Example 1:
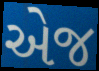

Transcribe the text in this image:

એજ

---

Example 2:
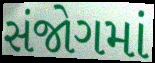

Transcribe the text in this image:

સંજોગમાં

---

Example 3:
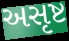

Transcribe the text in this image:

અસૃષ્ટ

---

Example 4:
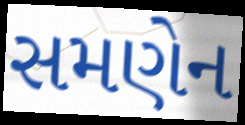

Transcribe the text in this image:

સમણેન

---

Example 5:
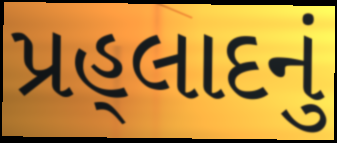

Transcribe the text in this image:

પ્રહ્‌લાદનું